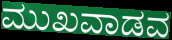
ಮುಖವಾಡವ